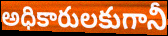
అధికారులకుగానీ